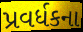
પ્રવર્ધકના